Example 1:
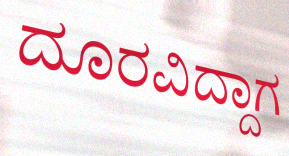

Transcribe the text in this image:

ದೂರವಿದ್ದಾಗ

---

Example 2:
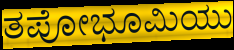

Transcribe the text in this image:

ತಪೋಭೂಮಿಯು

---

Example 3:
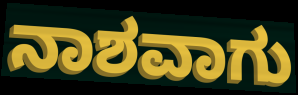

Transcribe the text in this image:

ನಾಶವಾಗು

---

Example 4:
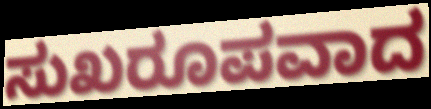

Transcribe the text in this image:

ಸುಖರೂಪವಾದ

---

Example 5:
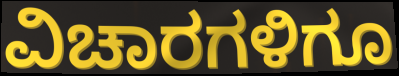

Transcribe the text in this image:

ವಿಚಾರಗಳಿಗೂ